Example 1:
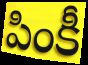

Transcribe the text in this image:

పింకీ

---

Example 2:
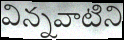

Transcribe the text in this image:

విన్నవాటిని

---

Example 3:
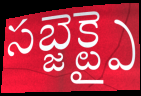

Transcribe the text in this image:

సబ్జెక్ట్పై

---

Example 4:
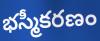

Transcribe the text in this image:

భస్మీకరణం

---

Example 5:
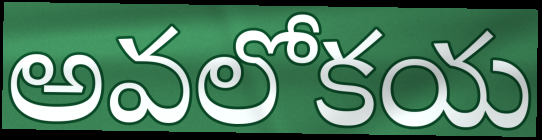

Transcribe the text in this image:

అవలోకయ